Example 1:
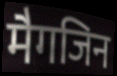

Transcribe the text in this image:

मैगजिन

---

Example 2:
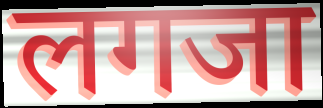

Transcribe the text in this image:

लगजा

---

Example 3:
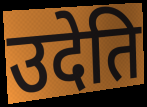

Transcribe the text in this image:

उदेति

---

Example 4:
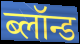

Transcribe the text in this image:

ब्लॉन्ड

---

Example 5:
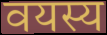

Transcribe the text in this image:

वयस्य